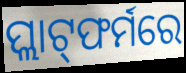
ପ୍ଲାଟ୍‌ଫର୍ମରେ